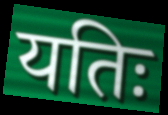
यतिः